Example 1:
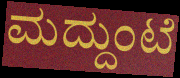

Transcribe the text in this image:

ಮದ್ದುಂಟೆ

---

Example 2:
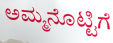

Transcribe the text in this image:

ಅಮ್ಮನೊಟ್ಟಿಗೆ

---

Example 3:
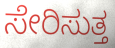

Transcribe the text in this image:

ಸೇರಿಸುತ್ತ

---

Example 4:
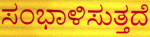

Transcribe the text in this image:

ಸಂಭಾಳಿಸುತ್ತದೆ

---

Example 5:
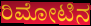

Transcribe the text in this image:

ರಿಮೋಟಿನ